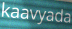
kaavyada